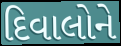
દિવાલોને